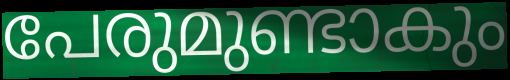
പേരുമുണ്ടാകും